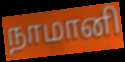
நாமானி